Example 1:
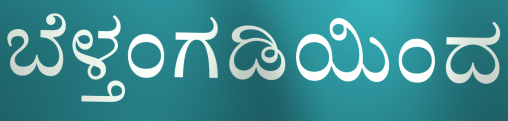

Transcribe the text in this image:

ಬೆಳ್ತಂಗಡಿಯಿಂದ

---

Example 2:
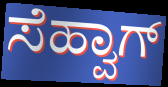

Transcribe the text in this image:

ಸೆಹ್ವಾಗ್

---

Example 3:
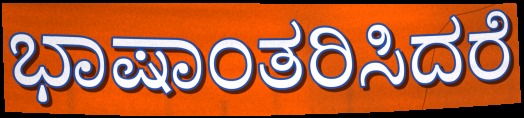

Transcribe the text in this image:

ಭಾಷಾಂತರಿಸಿದರೆ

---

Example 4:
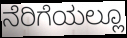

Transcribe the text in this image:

ನೆರಿಗೆಯಲ್ಲೂ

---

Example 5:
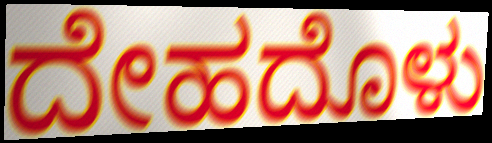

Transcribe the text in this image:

ದೇಹದೊಳು